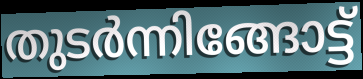
തുടർന്നിങ്ങോട്ട്